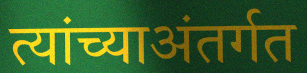
त्यांच्याअंतर्गत